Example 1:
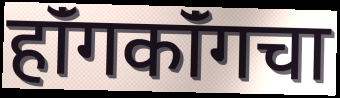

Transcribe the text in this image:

हॉंगकॉंगचा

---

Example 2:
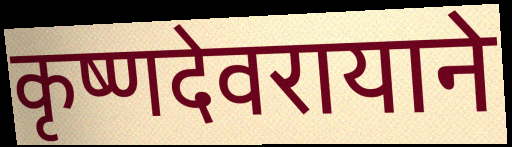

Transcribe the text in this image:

कृष्णदेवरायाने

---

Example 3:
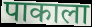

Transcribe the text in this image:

पाकाला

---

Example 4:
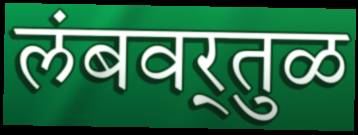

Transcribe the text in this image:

लंबवर्तुळ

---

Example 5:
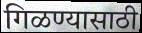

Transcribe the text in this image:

गिळण्यासाठी